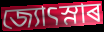
জ্যোৎস্নাৰ